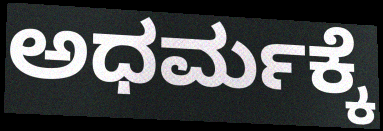
ಅಧರ್ಮಕ್ಕೆ